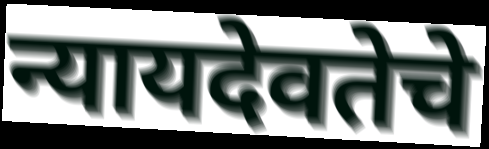
न्यायदेवतेचे